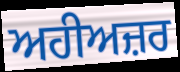
ਅਹੀਅਜ਼ਰ